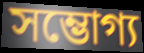
সম্ভোগ্য